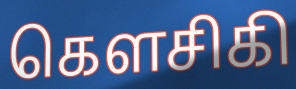
கௌசிகி